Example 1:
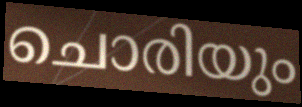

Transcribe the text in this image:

ചൊരിയും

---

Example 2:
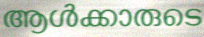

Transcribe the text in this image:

ആൾക്കാരുടെ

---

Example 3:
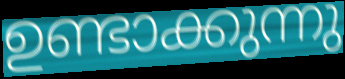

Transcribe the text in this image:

ഉണ്ടാക്കുന്നു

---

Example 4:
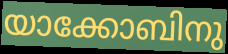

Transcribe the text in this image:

യാക്കോബിനു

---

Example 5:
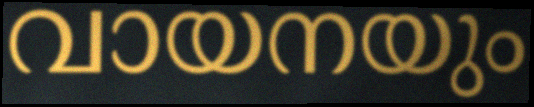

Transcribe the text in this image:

വായനയും